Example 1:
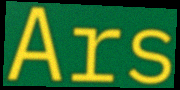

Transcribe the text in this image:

Ars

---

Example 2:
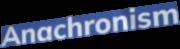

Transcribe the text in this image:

Anachronism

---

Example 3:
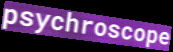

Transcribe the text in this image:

psychroscope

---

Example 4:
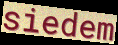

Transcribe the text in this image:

siedem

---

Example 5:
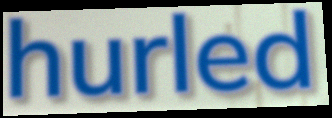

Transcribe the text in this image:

hurled